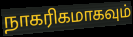
நாகரிகமாகவும்